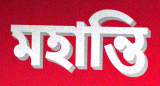
মহান্তি